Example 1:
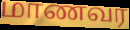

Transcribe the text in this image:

மாணவர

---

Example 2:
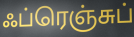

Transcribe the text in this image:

ஃப்ரெஞ்சுப்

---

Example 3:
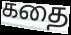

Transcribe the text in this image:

கதை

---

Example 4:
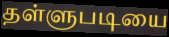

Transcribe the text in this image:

தள்ளுபடியை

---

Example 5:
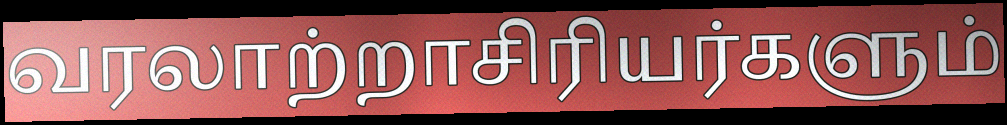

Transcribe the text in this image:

வரலாற்றாசிரியர்களும்